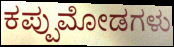
ಕಪ್ಪುಮೋಡಗಳು